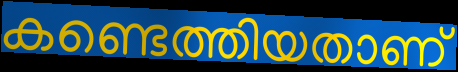
കണ്ടെത്തിയതാണ്